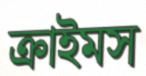
ক্রাইমস